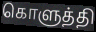
கொளுத்தி